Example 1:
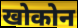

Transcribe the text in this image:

खोकोन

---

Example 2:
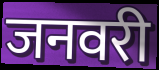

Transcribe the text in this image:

जनवरी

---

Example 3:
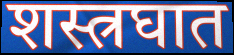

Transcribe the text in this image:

शस्त्रघात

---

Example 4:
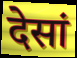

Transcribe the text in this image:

देसां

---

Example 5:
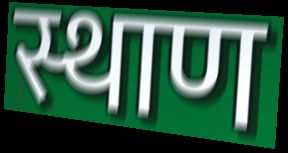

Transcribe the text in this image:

स्थाण